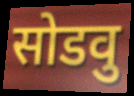
सोडवु